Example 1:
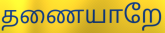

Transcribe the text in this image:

தணையாறே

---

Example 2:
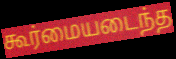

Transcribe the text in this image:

கூர்மையடைந்த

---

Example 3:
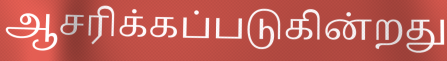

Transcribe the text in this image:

ஆசரிக்கப்படுகின்றது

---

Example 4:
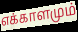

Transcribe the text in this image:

எக்காளமும்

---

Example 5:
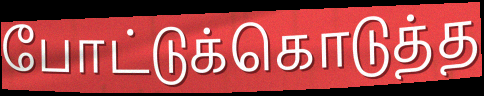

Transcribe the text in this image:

போட்டுக்கொடுத்த